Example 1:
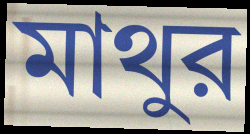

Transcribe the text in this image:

মাথুর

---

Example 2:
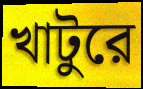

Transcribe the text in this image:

খাটুরে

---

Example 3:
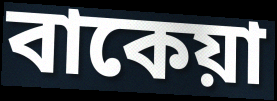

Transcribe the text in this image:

বাকেয়া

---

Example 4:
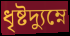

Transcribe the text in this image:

ধৃষ্টদ্যুম্নে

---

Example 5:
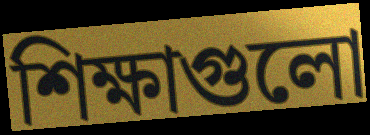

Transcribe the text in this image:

শিক্ষাগুলো